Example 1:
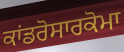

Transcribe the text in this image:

ਕਾਂਡਰੋਸਾਰਕੋਮਾ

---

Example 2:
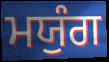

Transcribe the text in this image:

ਮਯੁੰਗ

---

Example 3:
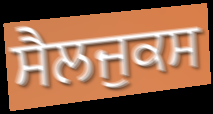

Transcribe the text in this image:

ਸੈਲਜੁਕਸ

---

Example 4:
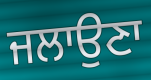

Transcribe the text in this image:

ਜਲਾਉਣਾ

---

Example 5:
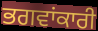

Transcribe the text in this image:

ਭਗਵਾਂਕਾਰੀ